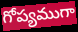
గోప్యముగా